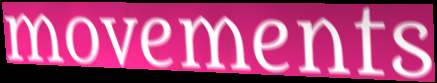
movements